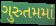
ગુરુતમમાં